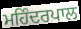
ਮਹਿੰਦਰਪਾਲ